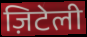
ज़िटेली